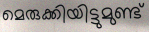
മെരുക്കിയിട്ടുമുണ്ട്